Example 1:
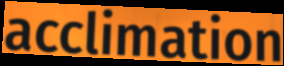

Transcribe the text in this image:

acclimation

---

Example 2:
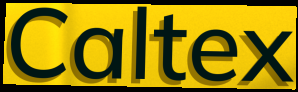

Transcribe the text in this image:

Caltex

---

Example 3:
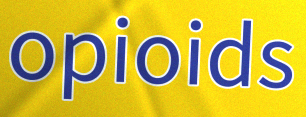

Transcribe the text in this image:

opioids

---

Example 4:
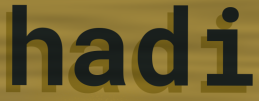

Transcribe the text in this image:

hadi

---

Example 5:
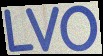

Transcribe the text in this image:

LVO